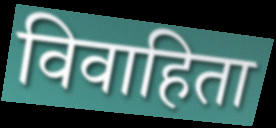
विवाहिता